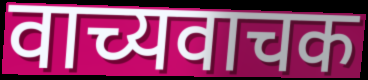
वाच्यवाचक